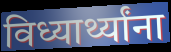
विध्यार्थ्यांना